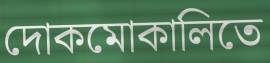
দোকমোকালিতে